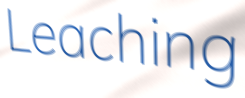
Leaching